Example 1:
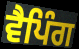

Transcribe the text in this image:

ਵੈਪਿੰਗ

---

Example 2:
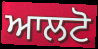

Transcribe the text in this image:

ਆਲਟੋ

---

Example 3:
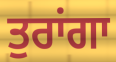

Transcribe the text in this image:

ਤੁਰਾਂਗਾ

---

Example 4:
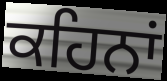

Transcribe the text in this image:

ਕਹਿਨਾਂ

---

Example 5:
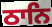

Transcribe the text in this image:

ਠਾਨਿ